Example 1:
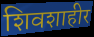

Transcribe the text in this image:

शिवशाहीर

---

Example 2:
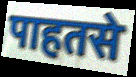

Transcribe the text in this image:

पाहतसे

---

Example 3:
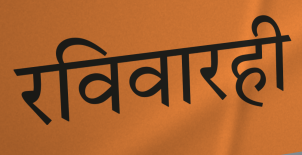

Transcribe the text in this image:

रविवारही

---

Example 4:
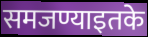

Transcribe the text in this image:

समजण्याइतके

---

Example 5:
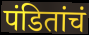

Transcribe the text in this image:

पंडितांचं